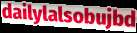
dailylalsobujbd